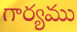
గార్యము